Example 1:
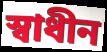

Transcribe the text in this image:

স্বাধীন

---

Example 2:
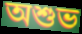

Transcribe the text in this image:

অশুভ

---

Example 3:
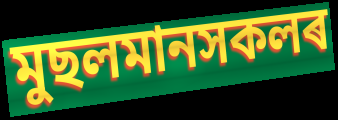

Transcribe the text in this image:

মুছলমানসকলৰ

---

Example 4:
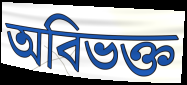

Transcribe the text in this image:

অবিভক্ত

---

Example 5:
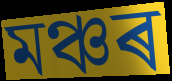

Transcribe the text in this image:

মঞ্চৰ